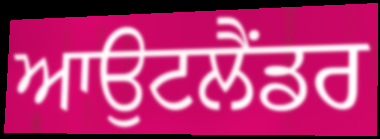
ਆਉਟਲੈਂਡਰ